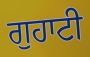
ਗੁਹਾਟੀ